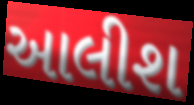
આલીશ